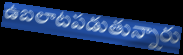
ఉబలాటపడుతున్నారు